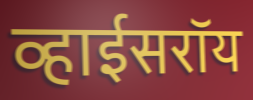
व्हाईसरॉय